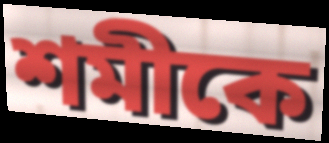
শমীকে